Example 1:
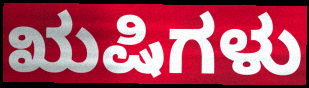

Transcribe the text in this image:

ಋಷಿಗಳು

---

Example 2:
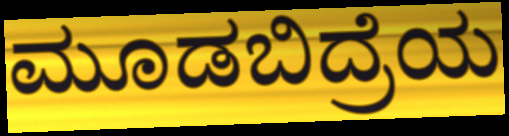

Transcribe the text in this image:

ಮೂಡಬಿದ್ರೆಯ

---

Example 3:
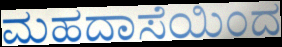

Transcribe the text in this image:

ಮಹದಾಸೆಯಿಂದ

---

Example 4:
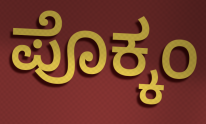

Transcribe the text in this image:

ಪೊಕ್ಕಂ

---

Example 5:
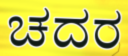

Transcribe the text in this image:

ಚದರ